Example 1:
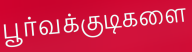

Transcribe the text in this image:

பூர்வக்குடிகளை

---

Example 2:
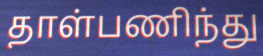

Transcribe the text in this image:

தாள்பணிந்து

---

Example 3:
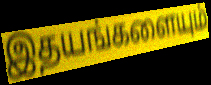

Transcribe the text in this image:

இதயங்களையும்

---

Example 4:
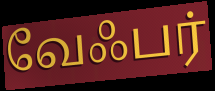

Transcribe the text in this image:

வேஃபர்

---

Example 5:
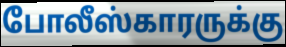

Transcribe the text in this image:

போலீஸ்காரருக்கு